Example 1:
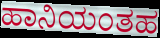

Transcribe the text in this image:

ಹಾನಿಯಂತಹ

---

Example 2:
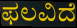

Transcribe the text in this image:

ಫಲವಿದೆ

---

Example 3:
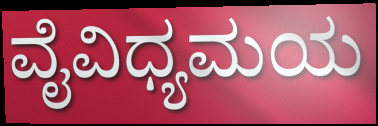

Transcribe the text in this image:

ವೈವಿಧ್ಯಮಯ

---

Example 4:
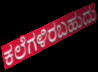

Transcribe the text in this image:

ಕಲೆಗಳಿರಬಹುದು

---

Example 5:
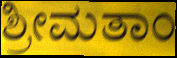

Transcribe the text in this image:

ಶ್ರೀಮತಾಂ